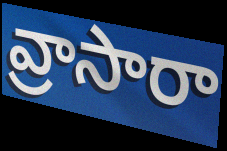
వ్రాసారా